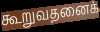
கூறுவதனைக்